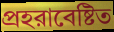
প্রহরাবেষ্টিত